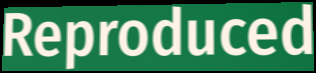
Reproduced